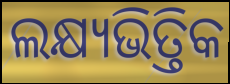
ଲକ୍ଷ୍ୟଭିତ୍ତିକ